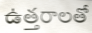
ఉత్తరాలతో